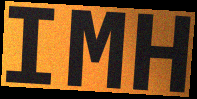
IMH